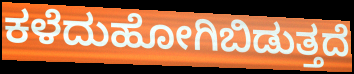
ಕಳೆದುಹೋಗಿಬಿಡುತ್ತದೆ